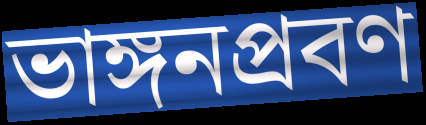
ভাঙ্গনপ্রবণ